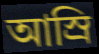
আস্রি